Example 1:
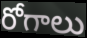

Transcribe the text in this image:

రోగాలు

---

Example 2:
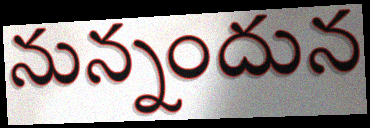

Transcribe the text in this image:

నున్నందున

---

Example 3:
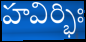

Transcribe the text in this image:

హవిర్భిః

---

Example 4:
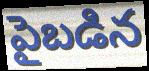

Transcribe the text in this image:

పైబడిన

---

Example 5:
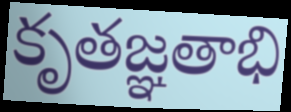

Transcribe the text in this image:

కృతజ్ఞతాభి